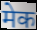
मेक